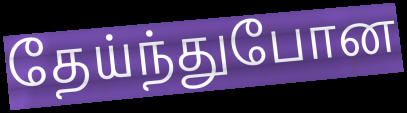
தேய்ந்துபோன